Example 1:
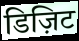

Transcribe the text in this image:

डिज़िट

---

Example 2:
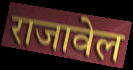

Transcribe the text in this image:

राजावेल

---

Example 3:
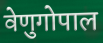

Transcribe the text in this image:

वेणुगोपाल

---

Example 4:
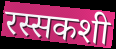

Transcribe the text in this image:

रस्सकशी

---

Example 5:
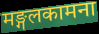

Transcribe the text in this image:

मङ्गलकामना